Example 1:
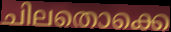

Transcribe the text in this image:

ചിലതൊക്കെ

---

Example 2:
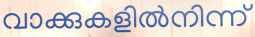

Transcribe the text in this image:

വാക്കുകളിൽനിന്ന്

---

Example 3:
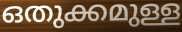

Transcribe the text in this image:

ഒതുക്കമുള്ള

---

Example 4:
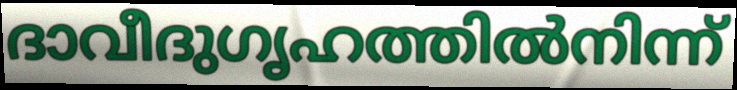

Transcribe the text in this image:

ദാവീദുഗൃഹത്തിൽനിന്ന്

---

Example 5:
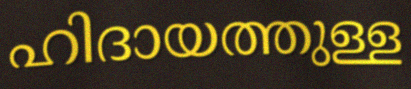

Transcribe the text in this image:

ഹിദായത്തുള്ള